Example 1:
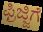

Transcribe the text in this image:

ಫ್ರಿಜ್ಜಿಗೆ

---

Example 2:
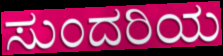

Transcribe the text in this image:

ಸುಂದರಿಯ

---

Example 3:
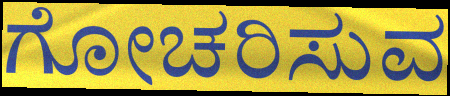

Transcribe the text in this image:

ಗೋಚರಿಸುವ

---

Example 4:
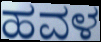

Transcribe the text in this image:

ಹವಳ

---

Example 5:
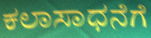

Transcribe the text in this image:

ಕಲಾಸಾಧನೆಗೆ